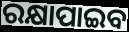
ରକ୍ଷାପାଇବ